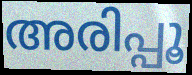
അരിപ്പൂ